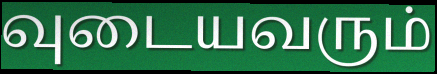
வுடையவரும்